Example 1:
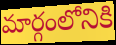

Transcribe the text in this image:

మార్గంలోనికి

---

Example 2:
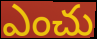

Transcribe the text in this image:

ఎంచు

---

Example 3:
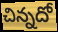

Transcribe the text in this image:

చిన్నదో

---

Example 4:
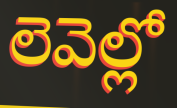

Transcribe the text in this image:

లెవెల్లో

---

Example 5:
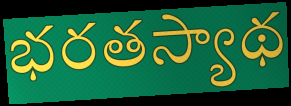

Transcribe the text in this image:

భరతస్యాథ